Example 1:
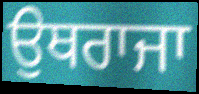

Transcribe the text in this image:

ਉਥਰਾਜਾ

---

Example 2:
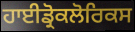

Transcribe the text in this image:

ਹਾਈਡ੍ਰੋਕਲੋਰਿਕਸ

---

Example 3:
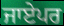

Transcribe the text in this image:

ਜਾਏਪਰ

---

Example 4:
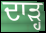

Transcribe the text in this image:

ਦਾੜ੍ਹ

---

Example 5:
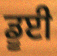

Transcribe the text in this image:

ਡੂਈ